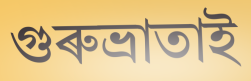
গুৰুভ্ৰাতাই